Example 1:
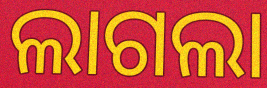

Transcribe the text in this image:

ଲାଗଲା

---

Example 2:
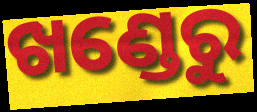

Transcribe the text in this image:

ଖଣ୍ଡେରୁ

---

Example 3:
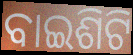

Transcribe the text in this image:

ବାଇଶିଟି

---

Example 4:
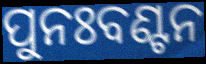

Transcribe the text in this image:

ପୁନଃବଣ୍ଟନ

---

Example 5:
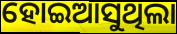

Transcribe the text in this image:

ହୋଇଆସୁଥିଲା